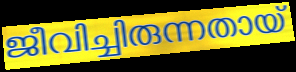
ജീവിച്ചിരുന്നതായ്